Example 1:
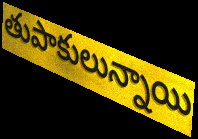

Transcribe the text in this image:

తుపాకులున్నాయి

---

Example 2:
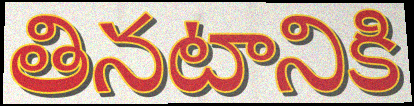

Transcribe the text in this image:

తినటానికి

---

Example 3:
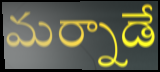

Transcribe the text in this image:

మర్నాడే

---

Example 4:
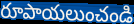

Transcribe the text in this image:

రూపాయలుంచండి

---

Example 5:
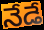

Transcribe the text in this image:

నేడే